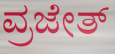
ವ್ರಜೇತ್